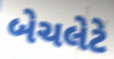
બેચલેટે